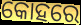
କୋହରେ